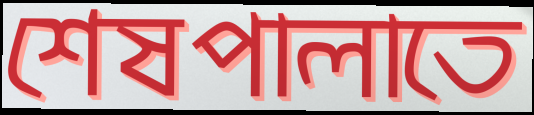
শেষপালাতে